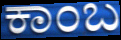
ಕಾಂಬ